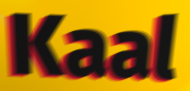
Kaal